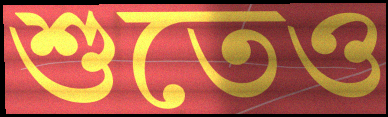
শুতেও